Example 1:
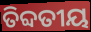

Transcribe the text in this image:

ତିବ୍ଦତୀୟ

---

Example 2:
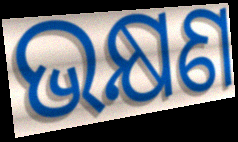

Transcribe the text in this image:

ଭକ୍ଷଣ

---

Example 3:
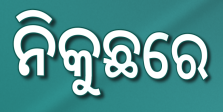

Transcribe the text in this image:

ନିକୁଛରେ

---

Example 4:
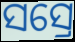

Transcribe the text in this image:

ସସ୍ରେ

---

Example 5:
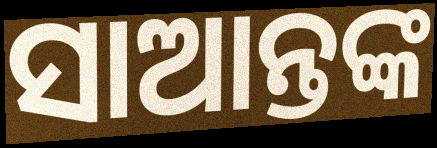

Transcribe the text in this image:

ସାଆନ୍ତଙ୍କ